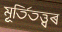
মূৰ্তিতত্ত্বৰ